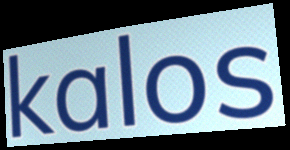
kalos